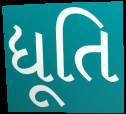
દ્યૂતિ